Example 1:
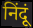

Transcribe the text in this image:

निंदूं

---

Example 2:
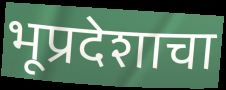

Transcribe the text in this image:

भूप्रदेशाचा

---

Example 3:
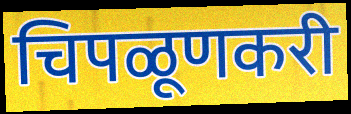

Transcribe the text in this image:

चिपळूणकरी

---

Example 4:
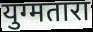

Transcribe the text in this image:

युग्मतारा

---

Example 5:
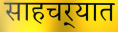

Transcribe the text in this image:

साहचर्यात